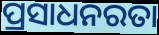
ପ୍ରସାଧନରତା